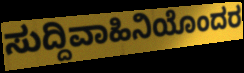
ಸುದ್ದಿವಾಹಿನಿಯೊಂದರ